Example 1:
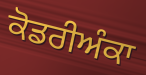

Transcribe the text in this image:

ਕੋਡਰੀਅੰਕਾ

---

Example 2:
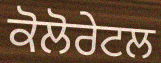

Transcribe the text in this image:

ਕੋਲੋਰੇਟਲ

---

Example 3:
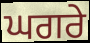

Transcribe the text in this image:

ਘਗਰੇ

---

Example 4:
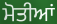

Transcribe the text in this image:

ਮੋਤੀਆਂ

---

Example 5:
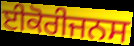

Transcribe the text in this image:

ਈਕੋਰੀਜਨਸ